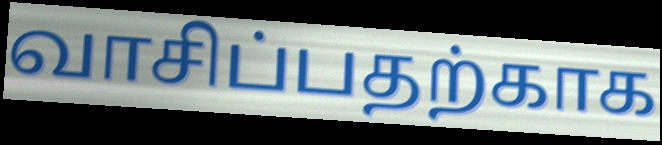
வாசிப்பதற்காக